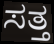
ಸತ್ತ